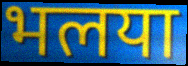
भलया